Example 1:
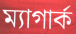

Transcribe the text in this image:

ম্যাগার্ক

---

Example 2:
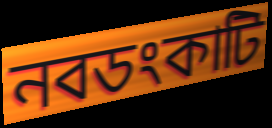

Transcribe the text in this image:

নবডংকাটি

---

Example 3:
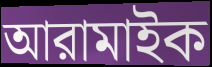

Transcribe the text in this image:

আরামাইক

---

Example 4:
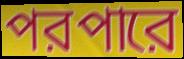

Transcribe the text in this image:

পরপারে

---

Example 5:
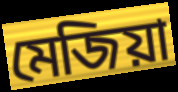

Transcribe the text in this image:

মেজিয়া